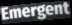
Emergent